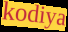
kodiya